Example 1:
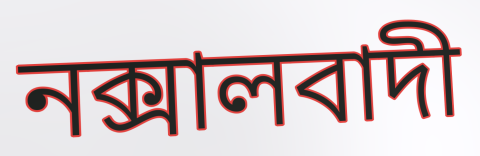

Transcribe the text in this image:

নক্সালবাদী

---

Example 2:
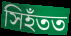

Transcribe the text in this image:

সিহঁতত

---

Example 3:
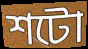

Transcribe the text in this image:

শটো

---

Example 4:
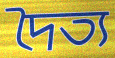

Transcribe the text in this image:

দৈত্য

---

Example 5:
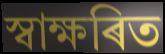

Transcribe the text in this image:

স্বাক্ষৰিত